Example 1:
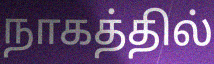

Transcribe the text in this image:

நாகத்தில்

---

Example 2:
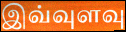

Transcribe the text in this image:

இவ்வுளவு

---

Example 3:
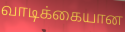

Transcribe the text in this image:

வாடிக்கையான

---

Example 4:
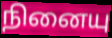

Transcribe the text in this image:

நினையு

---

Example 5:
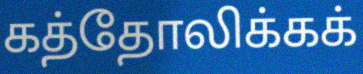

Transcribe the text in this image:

கத்தோலிக்கக்